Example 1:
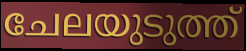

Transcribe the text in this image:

ചേലയുടുത്ത്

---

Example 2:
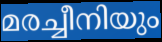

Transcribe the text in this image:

മരച്ചീനിയും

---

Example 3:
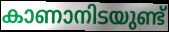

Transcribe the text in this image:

കാണാനിടയുണ്ട്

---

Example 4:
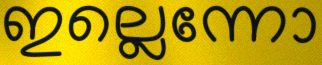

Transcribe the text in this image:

ഇല്ലെന്നോ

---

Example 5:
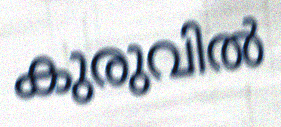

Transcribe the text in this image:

കുരുവിൽ